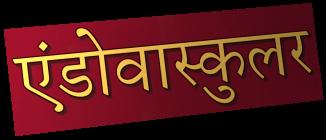
एंडोवास्कुलर